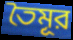
তৈমূর